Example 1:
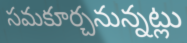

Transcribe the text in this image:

సమకూర్చనున్నట్లు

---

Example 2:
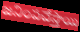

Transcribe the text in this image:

జనింపచేస్తాయి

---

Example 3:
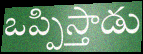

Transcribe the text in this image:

ఒప్పిస్తాడు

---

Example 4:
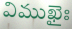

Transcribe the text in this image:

విముఖైః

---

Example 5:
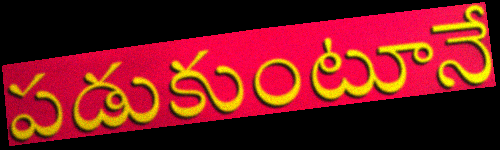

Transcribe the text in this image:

పడుకుంటూనే